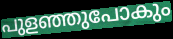
പുളഞ്ഞുപോകും